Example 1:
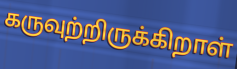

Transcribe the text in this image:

கருவுற்றிருக்கிறாள்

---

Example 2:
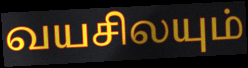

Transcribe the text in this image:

வயசிலயும்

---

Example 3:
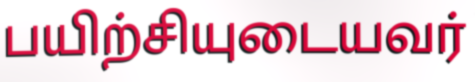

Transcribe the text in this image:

பயிற்சியுடையவர்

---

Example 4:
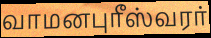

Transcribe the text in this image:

வாமனபுரீஸ்வரர்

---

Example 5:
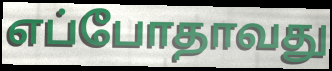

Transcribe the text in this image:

எப்போதாவது